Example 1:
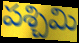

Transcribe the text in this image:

పశ్చిమి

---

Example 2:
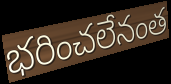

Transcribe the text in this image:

భరించలేనంత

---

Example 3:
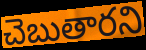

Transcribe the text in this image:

చెబుతారని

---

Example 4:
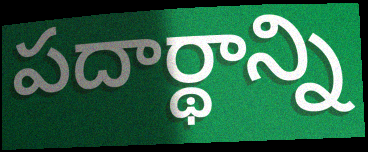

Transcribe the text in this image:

పదార్థాన్ని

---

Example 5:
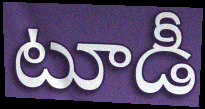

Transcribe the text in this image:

టూడీ